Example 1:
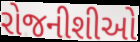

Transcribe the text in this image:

રોજનીશીઓ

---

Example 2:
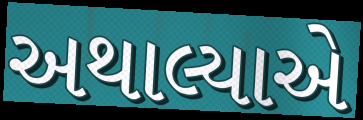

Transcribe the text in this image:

અથાલ્યાએ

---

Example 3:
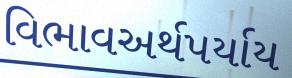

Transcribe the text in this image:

વિભાવઅર્થપર્યાય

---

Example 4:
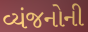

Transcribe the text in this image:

વ્યંજનોની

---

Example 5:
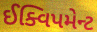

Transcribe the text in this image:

ઈક્વિપમેન્ટ